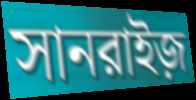
সানরাইজ়